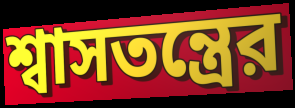
শ্বাসতন্ত্রের